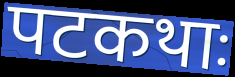
पटकथाः